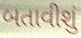
બતાવીશું